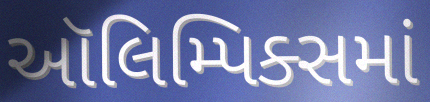
ઑલિમ્પિક્સમાં